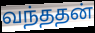
வந்ததன்